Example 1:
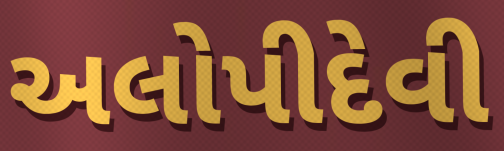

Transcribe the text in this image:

અલોપીદેવી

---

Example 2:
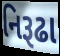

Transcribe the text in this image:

નિરૂઢા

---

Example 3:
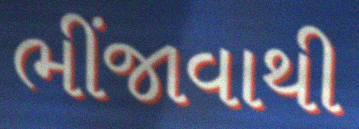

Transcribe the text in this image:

ભીંજાવાથી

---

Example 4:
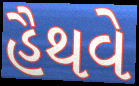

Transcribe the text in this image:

હૈથવે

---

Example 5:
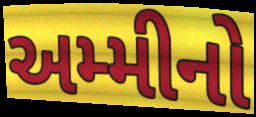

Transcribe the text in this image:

અમ્મીનો